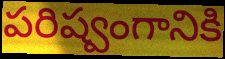
పరిష్వంగానికి